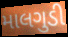
માલગુડી